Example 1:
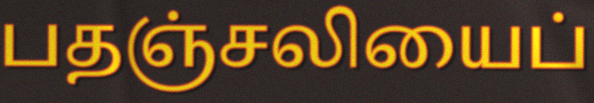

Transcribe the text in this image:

பதஞ்சலியைப்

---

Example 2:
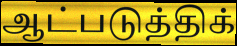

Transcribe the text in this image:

ஆட்படுத்திக்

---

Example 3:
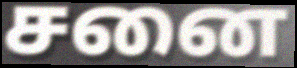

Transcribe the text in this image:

சனை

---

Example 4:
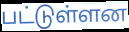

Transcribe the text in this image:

பட்டுள்ளன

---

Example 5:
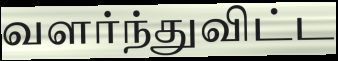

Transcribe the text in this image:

வளர்ந்துவிட்ட